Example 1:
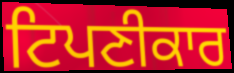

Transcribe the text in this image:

ਟਿਪਣੀਕਾਰ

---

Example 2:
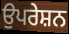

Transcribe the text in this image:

ਉਪਰੇਸ਼ਨ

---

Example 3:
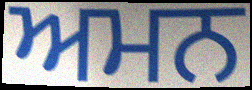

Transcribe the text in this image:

ਅਮਨ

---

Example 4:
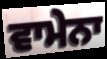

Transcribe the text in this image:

ਵਾਮੇਨਾ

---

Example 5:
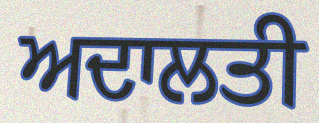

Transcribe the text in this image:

ਅਦਾਲਤੀ